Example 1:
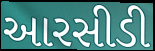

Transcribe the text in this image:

આરસીડી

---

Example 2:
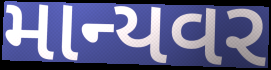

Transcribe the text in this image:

માન્યવર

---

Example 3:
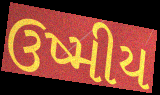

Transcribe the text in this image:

ઉષ્મીય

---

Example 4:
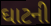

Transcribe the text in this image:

ઘાટની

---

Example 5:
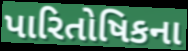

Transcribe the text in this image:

પારિતોષિકના